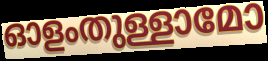
ഓളംതുള്ളാമോ